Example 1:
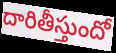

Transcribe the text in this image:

దారితీస్తుందో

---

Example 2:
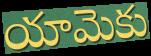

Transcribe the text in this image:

యామెకు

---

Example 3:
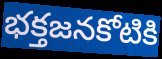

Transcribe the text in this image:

భక్తజనకోటికి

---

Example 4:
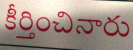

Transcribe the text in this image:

కీర్తించినారు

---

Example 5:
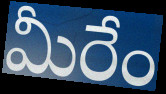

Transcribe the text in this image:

మీరేం